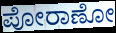
ಪೋರಾಣೋ